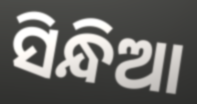
ସିନ୍ଧିଆ